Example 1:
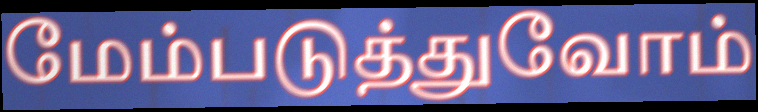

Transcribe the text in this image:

மேம்படுத்துவோம்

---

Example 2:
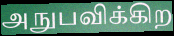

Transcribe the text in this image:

அநுபவிக்கிற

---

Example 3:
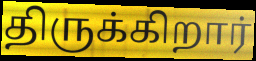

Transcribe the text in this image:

திருக்கிறார்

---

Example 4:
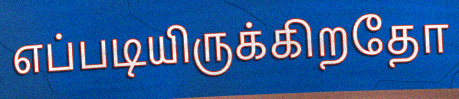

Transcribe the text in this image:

எப்படியிருக்கிறதோ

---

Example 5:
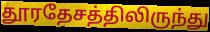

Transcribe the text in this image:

தூரதேசத்திலிருந்து